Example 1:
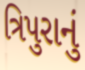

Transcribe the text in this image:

ત્રિપુરાનું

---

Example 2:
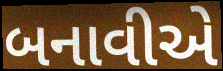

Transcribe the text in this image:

બનાવીએ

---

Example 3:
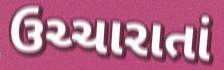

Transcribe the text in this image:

ઉચ્ચારાતાં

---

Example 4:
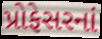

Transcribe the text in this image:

પ્રોફેસરનાં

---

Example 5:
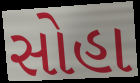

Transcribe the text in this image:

સોહા